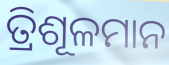
ତ୍ରିଶୂଳମାନ